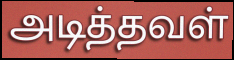
அடித்தவள்